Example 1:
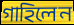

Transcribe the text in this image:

গাহিলেন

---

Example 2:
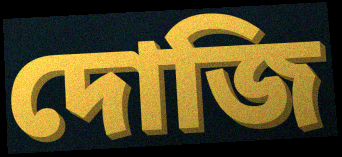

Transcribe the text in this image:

দোজি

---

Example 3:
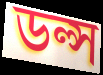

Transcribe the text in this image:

ডল্স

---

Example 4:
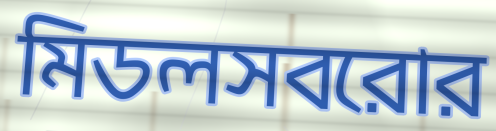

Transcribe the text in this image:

মিডলসবরোর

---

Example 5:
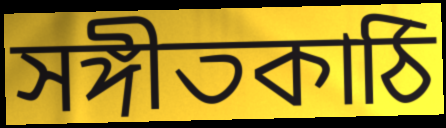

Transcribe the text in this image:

সঙ্গীতকাঠি